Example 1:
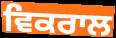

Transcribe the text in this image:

ਵਿਕਰਾਲ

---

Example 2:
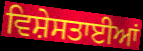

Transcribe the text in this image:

ਵਿਸ਼ੇਸਤਾਈਆਂ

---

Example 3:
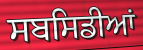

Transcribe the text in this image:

ਸਬਸਿਡੀਆਂ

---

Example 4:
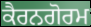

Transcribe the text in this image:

ਕੈਰਨਗੋਰਮ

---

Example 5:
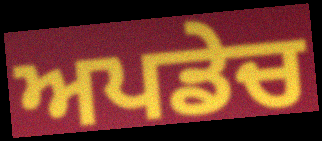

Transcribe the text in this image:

ਅਪਡੇਚ